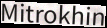
Mitrokhin